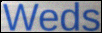
Weds